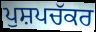
ਪੁਸ਼ਪਚੱਕਰ